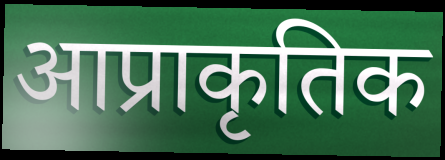
आप्राकृतिक